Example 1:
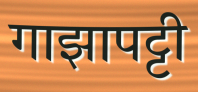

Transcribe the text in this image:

गाझापट्टी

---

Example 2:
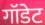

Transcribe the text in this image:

गॉडेट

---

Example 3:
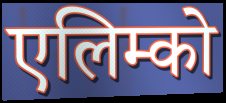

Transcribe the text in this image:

एलिम्को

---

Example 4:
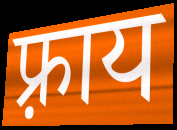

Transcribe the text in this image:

फ़्राय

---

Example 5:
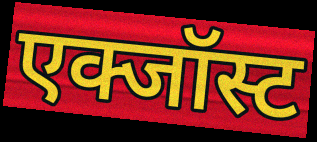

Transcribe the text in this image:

एक्जॉस्ट